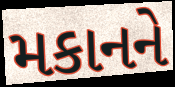
મકાનને